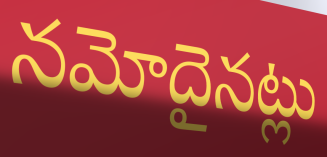
నమోదైనట్లు